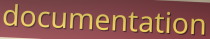
documentation